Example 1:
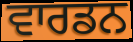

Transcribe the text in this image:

ਵਾਰਡਨ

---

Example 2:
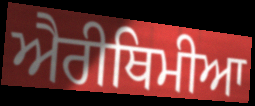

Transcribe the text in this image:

ਐਰੀਥਿਮੀਆ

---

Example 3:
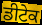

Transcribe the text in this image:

ਡੀਟੇਕ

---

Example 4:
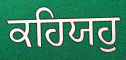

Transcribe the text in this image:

ਕਹਿਯਹੁ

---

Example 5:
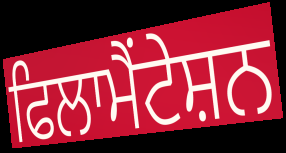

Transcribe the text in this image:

ਫਿਲਾਮੈਂਟੇਸ਼ਨ